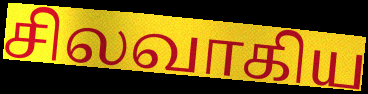
சிலவாகிய